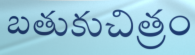
బతుకుచిత్రం